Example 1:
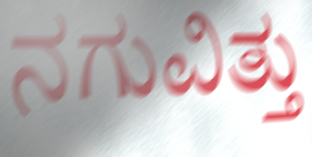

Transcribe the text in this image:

ನಗುವಿತ್ತು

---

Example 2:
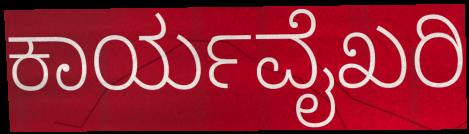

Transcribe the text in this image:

ಕಾರ್ಯವೈಖರಿ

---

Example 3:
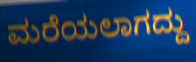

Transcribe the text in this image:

ಮರೆಯಲಾಗದ್ದು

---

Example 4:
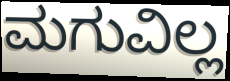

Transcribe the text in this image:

ಮಗುವಿಲ್ಲ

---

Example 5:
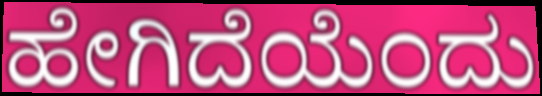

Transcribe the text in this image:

ಹೇಗಿದೆಯೆಂದು